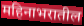
महिनाभरातील